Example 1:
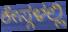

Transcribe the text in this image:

ಕೇಸ್ಗಳಲ್ಲಿ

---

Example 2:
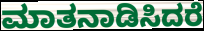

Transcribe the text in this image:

ಮಾತನಾಡಿಸಿದರೆ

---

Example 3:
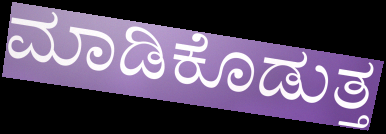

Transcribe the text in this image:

ಮಾಡಿಕೊಡುತ್ತ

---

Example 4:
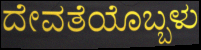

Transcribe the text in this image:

ದೇವತೆಯೊಬ್ಬಳು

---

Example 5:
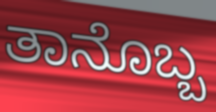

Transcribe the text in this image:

ತಾನೊಬ್ಬ